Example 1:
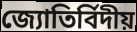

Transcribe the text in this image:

জ্যোতির্বিদীয়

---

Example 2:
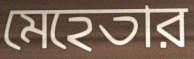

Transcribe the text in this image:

মেহেতার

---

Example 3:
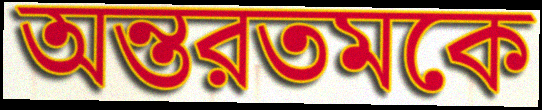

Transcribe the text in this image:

অন্তরতমকে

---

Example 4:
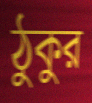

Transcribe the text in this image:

ঠুকুর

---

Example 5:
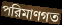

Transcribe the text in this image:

পরিমাণগত